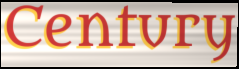
Century